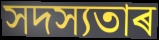
সদস্যতাৰ